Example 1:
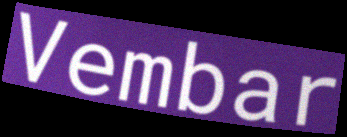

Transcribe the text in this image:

Vembar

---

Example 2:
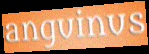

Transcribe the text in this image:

anguinus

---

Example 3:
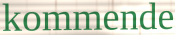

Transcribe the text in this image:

kommende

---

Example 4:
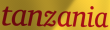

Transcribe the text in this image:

tanzania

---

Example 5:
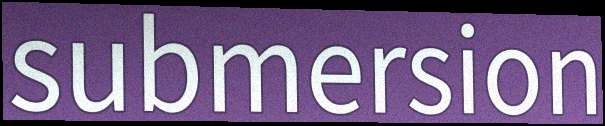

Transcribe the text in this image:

submersion